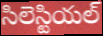
సిలెస్టియల్